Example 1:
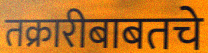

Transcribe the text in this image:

तक्रारीबाबतचे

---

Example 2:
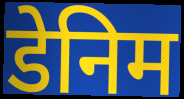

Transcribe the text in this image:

डेनिम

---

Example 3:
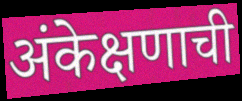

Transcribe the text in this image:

अंकेक्षणाची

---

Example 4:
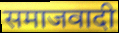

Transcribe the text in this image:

समाजवादी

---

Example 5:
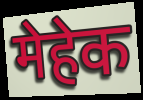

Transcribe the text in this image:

मेहेक